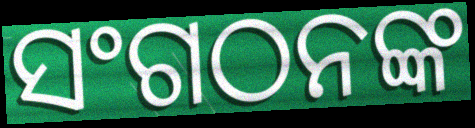
ସଂଗଠନଙ୍କ